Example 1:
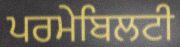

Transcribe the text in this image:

ਪਰਮੇਬਿਲਟੀ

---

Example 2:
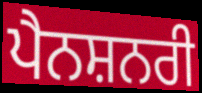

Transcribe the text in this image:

ਪੈਨਸ਼ਨਰੀ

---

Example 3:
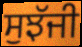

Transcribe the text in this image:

ਸੁਝੱਜੀ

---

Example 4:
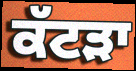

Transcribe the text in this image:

ਕੱਟੜਾ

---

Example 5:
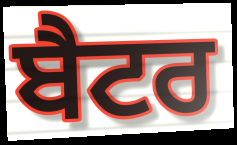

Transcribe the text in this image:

ਬੈਟਰ